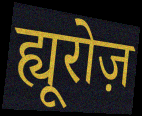
ह्यूरोज़